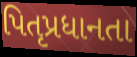
પિતૃપ્રધાનતા